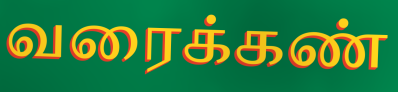
வரைக்கண்